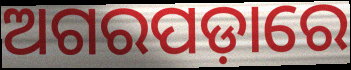
ଅଗରପଡ଼ାରେ